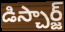
డిస్చార్జ్